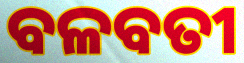
ବଳବତୀ